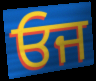
ਓਜ